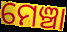
ମେଞ୍ଚା